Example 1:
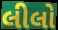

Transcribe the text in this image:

લીલો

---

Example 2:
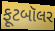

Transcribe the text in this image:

ફૂટબૉલર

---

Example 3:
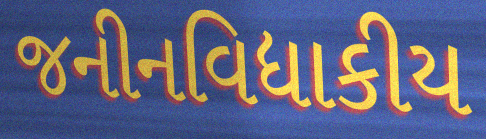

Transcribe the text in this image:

જનીનવિદ્યાકીય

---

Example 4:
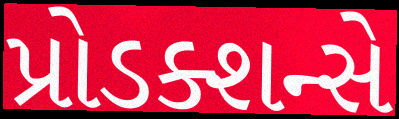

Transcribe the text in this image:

પ્રોડક્શન્સે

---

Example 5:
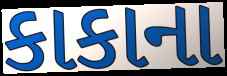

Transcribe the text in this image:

કાકાના